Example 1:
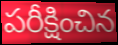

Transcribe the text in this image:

పరీక్షించిన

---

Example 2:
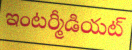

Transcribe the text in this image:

ఇంటర్మీడియట్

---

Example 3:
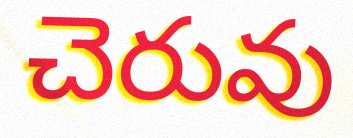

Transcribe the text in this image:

చెరువు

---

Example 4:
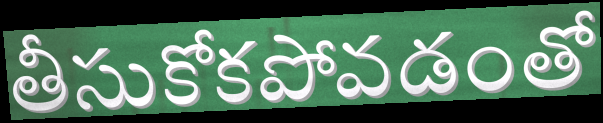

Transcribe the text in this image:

తీసుకోకపోవడంతో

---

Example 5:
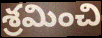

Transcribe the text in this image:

శ్రమించి